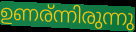
ഉണര്ന്നിരുന്നു